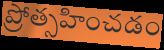
ప్రోత్సహించడం